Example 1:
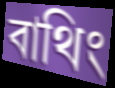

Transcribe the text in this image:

বাথিং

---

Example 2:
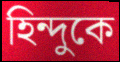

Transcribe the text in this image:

হিন্দুকে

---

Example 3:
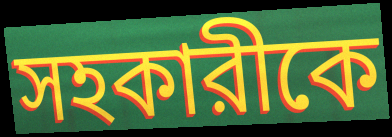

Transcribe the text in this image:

সহকারীকে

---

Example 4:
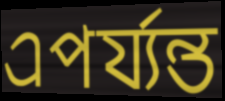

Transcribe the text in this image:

এপর্য্যন্ত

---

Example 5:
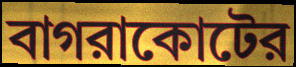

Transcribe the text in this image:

বাগরাকোটের